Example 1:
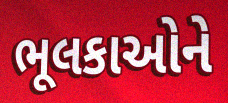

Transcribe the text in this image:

ભૂલકાઓને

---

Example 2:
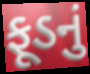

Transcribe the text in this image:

ફૂડનું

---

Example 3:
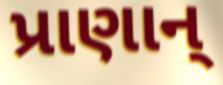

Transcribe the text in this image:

પ્રાણાન્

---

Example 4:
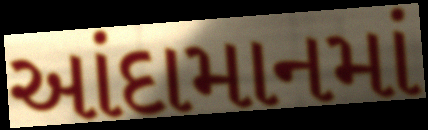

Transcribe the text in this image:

આંદામાનમાં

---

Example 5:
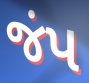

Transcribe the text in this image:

જંપ